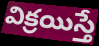
విక్రయిస్తే